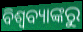
ବିଶ୍ୱବ୍ୟାଙ୍କରୁ